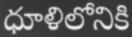
ధూళిలోనికి